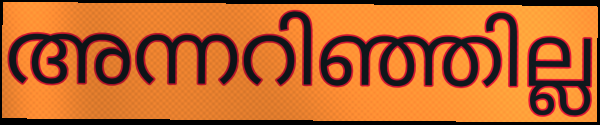
അന്നറിഞ്ഞില്ല